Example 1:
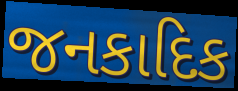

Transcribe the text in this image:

જનકાદિક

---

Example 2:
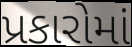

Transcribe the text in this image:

પ્રકારોમાં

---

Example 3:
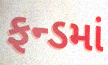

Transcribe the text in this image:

ફન્ડમાં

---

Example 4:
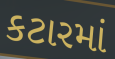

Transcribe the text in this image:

કટારમાં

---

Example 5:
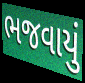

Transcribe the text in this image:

ભજવાયું